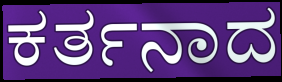
ಕರ್ತನಾದ